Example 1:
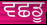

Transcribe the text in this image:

ਵਛਡੂ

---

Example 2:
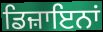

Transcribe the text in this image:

ਡਿਜ਼ਾਇਨਾਂ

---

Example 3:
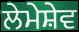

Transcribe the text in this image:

ਲੇਮੇਸ਼ੇਵ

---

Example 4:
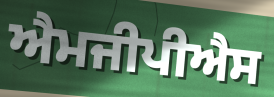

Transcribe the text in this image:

ਐਮਜੀਪੀਐਸ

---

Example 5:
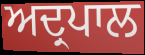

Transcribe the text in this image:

ਅਦ੍ਰਪਾਲ